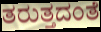
ತರುತ್ತದಂತೆ